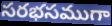
సరభసముగా